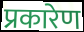
प्रकारेण